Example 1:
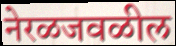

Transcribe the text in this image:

नेरळजवळील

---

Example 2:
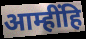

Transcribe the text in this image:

आम्हींहि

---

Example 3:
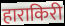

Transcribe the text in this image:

हाराकिरी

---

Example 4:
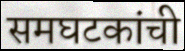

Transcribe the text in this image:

समघटकांची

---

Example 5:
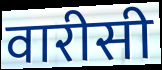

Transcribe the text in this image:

वारीसी